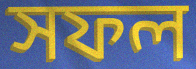
সফল